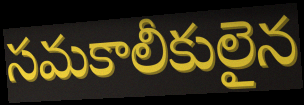
సమకాలీకులైన